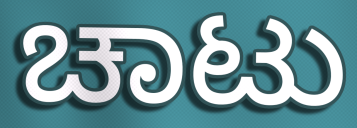
ಚಾಟು